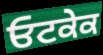
ਓਟਕੇਕ